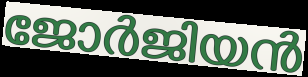
ജോർജിയൻ